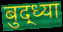
बुद्ध्या